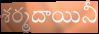
శర్మదాయినీ